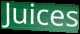
Juices